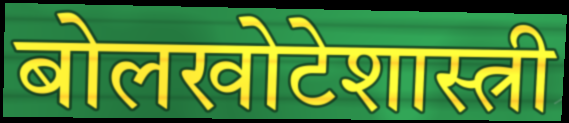
बोलखोटेशास्त्री